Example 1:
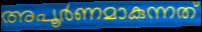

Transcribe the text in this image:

അപൂർണമാകുന്നത്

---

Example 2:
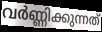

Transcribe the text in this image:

വർണ്ണിക്കുന്നത്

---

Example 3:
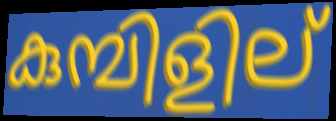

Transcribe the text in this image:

കുമ്പിളില്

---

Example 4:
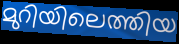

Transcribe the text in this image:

മുറിയിലെത്തിയ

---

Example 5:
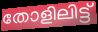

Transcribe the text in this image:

തോളിലിട്ട്